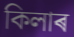
কিলাৰ